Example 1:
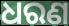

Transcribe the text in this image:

ଧରଣ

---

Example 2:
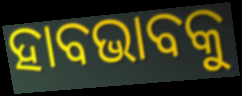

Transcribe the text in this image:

ହାବଭାବକୁ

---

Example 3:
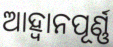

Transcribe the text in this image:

ଆହ୍ବାନପୂର୍ଣ୍ଣ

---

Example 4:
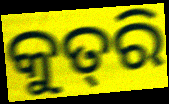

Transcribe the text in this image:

କୁତ୍‌ରି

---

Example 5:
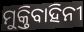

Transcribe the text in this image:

ମୁକ୍ତିବାହିନୀ